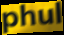
phul